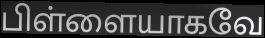
பிள்ளையாகவே